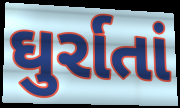
ઘુર્રાતાં